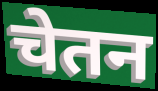
चेतन